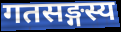
गतसङ्गस्य